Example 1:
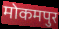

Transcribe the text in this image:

मोकमपुर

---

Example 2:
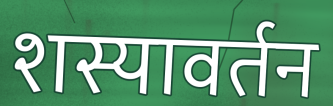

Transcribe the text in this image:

शस्यावर्तन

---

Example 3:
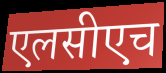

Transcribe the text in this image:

एलसीएच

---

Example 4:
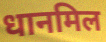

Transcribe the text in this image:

धानमिल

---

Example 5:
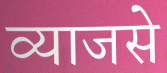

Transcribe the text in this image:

व्याजसे